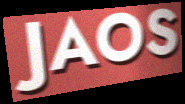
JAOS